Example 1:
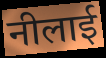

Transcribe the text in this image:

नीलाई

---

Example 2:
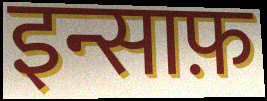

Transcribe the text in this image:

इन्साफ़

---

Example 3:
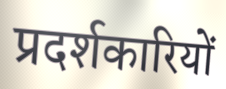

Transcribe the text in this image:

प्रदर्शकारियों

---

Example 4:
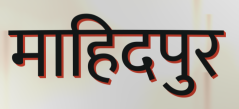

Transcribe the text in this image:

माहिदपुर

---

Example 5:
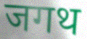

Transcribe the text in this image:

जगथ